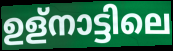
ഉള്നാട്ടിലെ